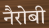
नैरोबी